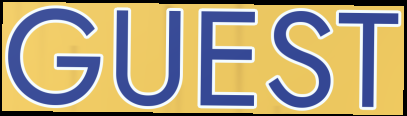
GUEST